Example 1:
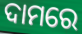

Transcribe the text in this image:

ଦାମରେ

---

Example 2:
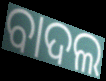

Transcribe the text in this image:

ବାଦଲ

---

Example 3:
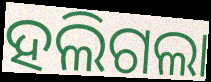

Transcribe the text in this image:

ହଲିଗଲା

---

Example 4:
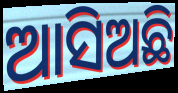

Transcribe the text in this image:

ଆସିଅଛି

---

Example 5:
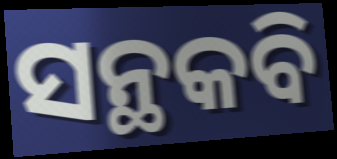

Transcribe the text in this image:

ସନ୍ଥକବି